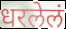
धरलेलं